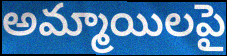
అమ్మాయిలపై